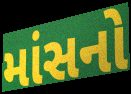
માંસનો